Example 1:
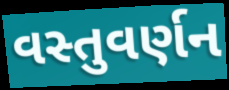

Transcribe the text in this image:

વસ્તુવર્ણન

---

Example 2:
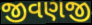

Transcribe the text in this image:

જીવણજી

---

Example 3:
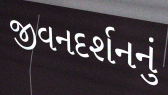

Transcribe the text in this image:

જીવનદર્શનનું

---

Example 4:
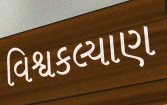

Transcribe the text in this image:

વિશ્વકલ્યાણ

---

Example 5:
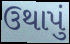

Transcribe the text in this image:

ઉથાપું